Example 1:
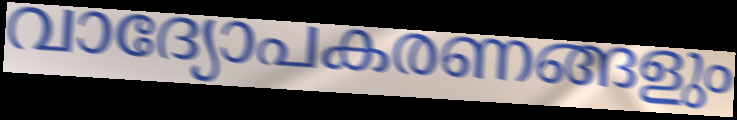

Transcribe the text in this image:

വാദ്യോപകരണങ്ങളും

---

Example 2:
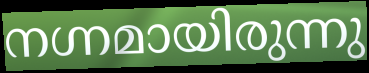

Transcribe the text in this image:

നഗ്നമായിരുന്നു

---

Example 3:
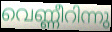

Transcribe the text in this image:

വെണ്ണീറിന്നു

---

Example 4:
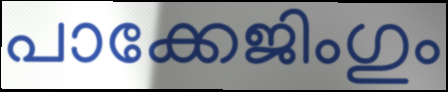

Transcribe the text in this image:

പാക്കേജിംഗും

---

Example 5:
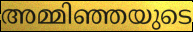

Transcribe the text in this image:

അമ്മിഞ്ഞയുടെ